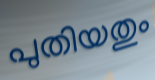
പുതിയതും